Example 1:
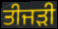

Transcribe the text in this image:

ਤੀਜੜੀ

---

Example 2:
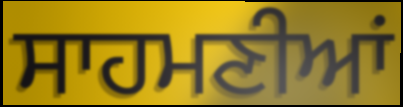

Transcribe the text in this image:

ਸਾਹਮਣੀਆਂ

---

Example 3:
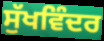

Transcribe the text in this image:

ਸੁੱਖਵਿੰਦਰ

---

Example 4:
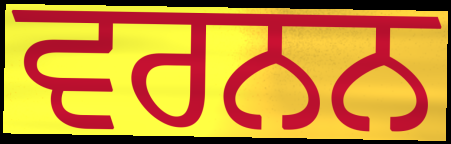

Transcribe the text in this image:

ਵਰਨਨ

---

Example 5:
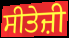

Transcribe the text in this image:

ਸੀਤੇਜ਼ੀ